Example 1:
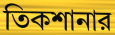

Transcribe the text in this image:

তিকশানার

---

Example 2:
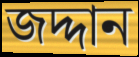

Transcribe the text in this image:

জদ্দান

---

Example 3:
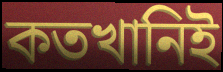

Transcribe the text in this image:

কতখানিই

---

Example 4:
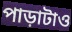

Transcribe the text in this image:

পাড়াটাও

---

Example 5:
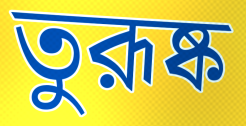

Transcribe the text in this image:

তুরূষ্ক